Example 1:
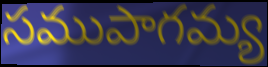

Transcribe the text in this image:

సముపాగమ్య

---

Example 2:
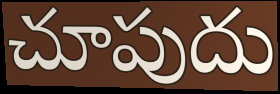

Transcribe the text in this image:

చూపుదు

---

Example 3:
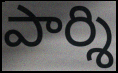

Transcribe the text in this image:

పార్శి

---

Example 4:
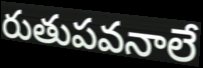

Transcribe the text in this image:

రుతుపవనాలే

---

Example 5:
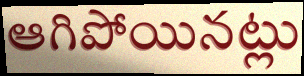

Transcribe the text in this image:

ఆగిపోయినట్లు